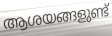
ആശയങ്ങളുണ്ട്